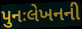
પુનઃલેખનની